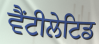
ਵੈਂਟੀਲੇਟਿਡ